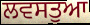
ਲਵਸਤੁਆ